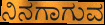
ನಿನಗಾಗುವ